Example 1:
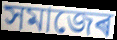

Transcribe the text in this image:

সমাজেৰ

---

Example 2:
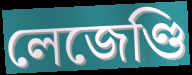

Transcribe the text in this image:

লেজেণ্ডি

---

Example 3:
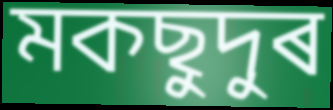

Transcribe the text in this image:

মকছুদুৰ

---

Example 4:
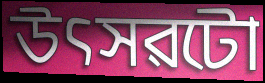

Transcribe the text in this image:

উৎসৱটো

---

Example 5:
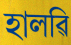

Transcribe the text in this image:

হালৱি